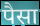
पैसा